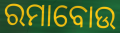
ରମାବୋଉ